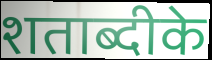
शताब्दीके